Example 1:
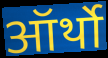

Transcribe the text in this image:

ऑर्थो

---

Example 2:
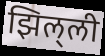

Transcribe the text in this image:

झिल्ली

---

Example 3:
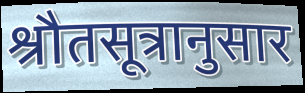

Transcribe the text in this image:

श्रौतसूत्रानुसार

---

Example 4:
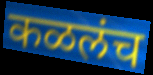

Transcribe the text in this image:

कळलंच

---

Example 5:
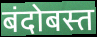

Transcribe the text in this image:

बंदोबस्त